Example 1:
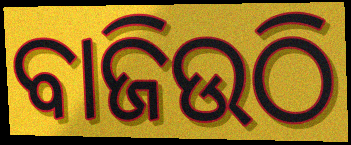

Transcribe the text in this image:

ବାଜିଉଠି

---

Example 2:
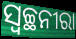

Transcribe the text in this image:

ସ୍ୱଚ୍ଛନୀରା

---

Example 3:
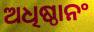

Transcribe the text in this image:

ଅଧିଷ୍ଠାନଂ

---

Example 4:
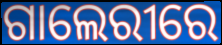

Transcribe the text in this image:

ଗାଲେରୀରେ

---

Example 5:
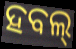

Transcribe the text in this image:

ହବଲ୍